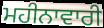
ਮਹੀਨਾਵਾਰੀ